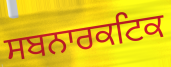
ਸਬਨਾਰਕਟਿਕ